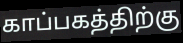
காப்பகத்திற்கு